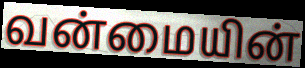
வன்மையின்